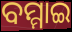
ବମ୍ମାଇ